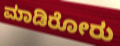
ಮಾಡಿರೋರು